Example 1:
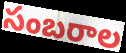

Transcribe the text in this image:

సంబరాల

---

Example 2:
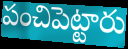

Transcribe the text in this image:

పంచిపెట్టారు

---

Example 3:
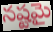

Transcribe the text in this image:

నష్టమై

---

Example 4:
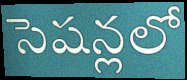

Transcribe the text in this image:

సెషన్లలో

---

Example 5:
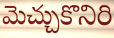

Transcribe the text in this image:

మెచ్చుకొనిరి